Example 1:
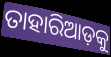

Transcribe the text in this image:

ତାହାରିଆଡ଼କୁ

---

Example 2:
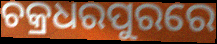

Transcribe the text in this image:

ଚକ୍ରଧରପୁରରେ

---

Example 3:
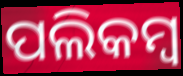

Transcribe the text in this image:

ପଲିକମ୍ବ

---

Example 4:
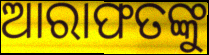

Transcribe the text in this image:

ଆରାଫତଙ୍କୁ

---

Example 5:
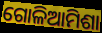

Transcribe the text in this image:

ଗୋଳିଆମିଶା